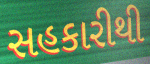
સહકારીથી